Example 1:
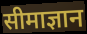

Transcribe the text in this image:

सीमाज्ञान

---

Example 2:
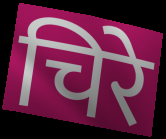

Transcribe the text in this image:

चिरे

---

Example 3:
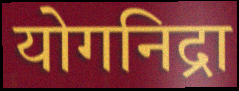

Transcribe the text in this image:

योगनिद्रा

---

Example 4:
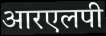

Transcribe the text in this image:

आरएलपी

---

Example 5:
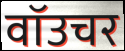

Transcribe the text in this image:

वॉउचर